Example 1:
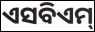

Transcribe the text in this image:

ଏସବିଏମ୍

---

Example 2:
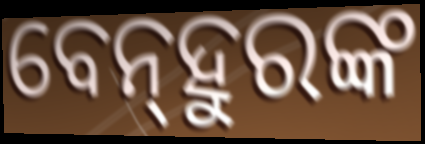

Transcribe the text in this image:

ବେନ୍‍ହୁରଙ୍କ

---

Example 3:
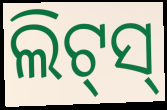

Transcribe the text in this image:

ଲିଟ୍‌ସ୍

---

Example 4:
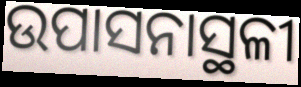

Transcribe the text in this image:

ଉପାସନାସ୍ଥଳୀ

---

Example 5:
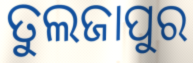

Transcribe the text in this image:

ତୁଲଜାପୁର